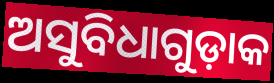
ଅସୁବିଧାଗୁଡ଼ାକ